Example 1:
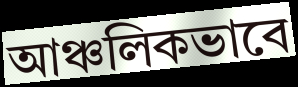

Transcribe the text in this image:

আঞ্চলিকভাবে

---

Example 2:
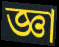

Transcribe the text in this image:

জ্ঞা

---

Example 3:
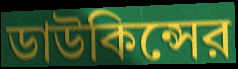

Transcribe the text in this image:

ডাউকিন্সের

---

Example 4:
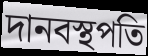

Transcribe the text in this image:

দানবস্থপতি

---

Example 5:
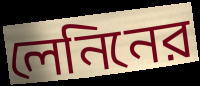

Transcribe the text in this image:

লেনিনের